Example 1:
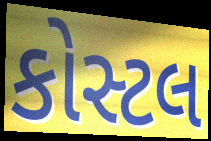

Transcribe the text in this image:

કોસ્ટલ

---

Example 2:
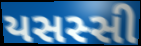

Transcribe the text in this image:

યસસ્સી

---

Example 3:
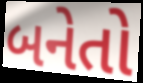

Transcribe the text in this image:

બનેતો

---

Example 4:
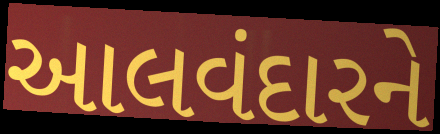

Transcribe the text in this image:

આલવંદારને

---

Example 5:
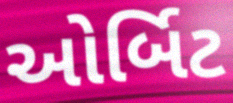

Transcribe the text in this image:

ઓર્બિટ